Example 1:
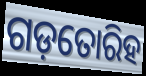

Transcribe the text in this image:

ଗଡ଼ତୋରିହ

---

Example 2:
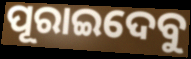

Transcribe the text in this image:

ପୂରାଇଦେବୁ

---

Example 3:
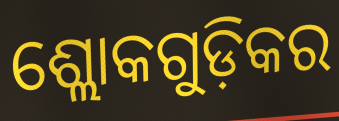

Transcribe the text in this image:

ଶ୍ଲୋକଗୁଡ଼ିକର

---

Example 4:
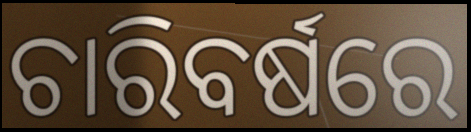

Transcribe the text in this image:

ଚାରିବର୍ଷରେ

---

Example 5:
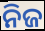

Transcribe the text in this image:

ନିଜ